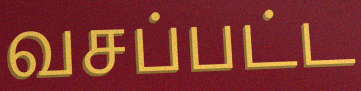
வசப்பட்ட